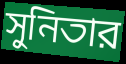
সুনিতার